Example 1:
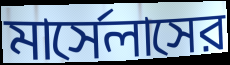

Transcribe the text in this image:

মার্সেলাসের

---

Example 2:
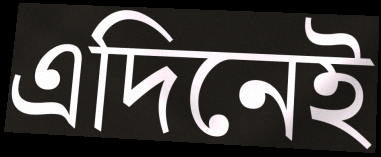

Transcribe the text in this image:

এদিনেই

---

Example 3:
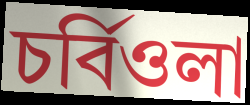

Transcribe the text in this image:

চর্বিওলা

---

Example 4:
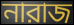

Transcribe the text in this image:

নারাজ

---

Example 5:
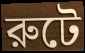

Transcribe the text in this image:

রুটে